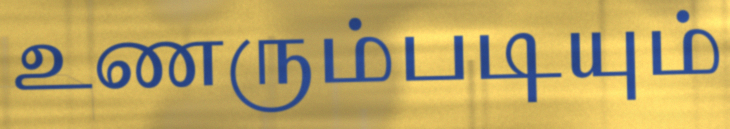
உணரும்படியும்